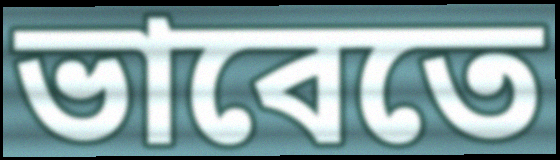
ভাবেতে